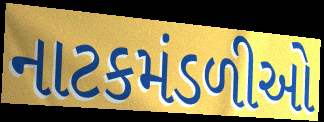
નાટકમંડળીઓ